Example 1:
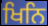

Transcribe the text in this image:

ਖਿਨਿ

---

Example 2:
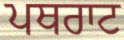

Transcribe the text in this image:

ਪਥਰਾਟ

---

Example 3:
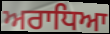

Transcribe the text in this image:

ਅਰਾਧਿਆ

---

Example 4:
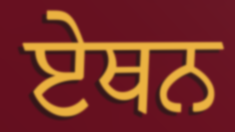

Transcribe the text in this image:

ਏਥਨ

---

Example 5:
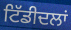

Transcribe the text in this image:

ਟਿੱਡੀਦਲਾਂ